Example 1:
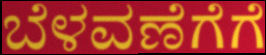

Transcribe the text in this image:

ಬೆಳವಣೆಗೆಗೆ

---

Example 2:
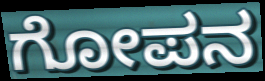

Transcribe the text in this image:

ಗೋಪನ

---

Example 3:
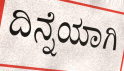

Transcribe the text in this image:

ದಿನ್ನೆಯಾಗಿ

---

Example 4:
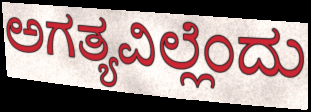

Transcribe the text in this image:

ಅಗತ್ಯವಿಲ್ಲೆಂದು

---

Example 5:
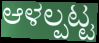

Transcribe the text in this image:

ಆಳಲ್ಪಟ್ಟ